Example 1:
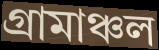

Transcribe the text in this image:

গ্রামাঞ্চল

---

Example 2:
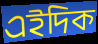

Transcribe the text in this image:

এইদিক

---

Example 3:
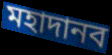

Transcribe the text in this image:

মহাদানব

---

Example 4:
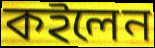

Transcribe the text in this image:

কইলেন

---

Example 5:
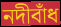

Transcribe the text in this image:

নদীবাঁধ